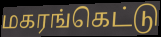
மகரங்கெட்டு